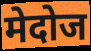
मेदोज